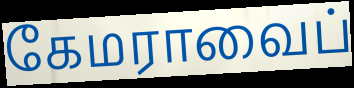
கேமராவைப்